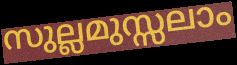
സുല്ലമുസ്സലാം